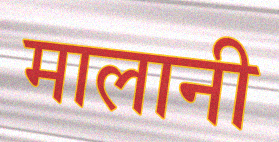
मालानी